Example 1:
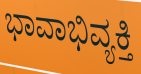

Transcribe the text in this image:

ಭಾವಾಭಿವ್ಯಕ್ತಿ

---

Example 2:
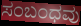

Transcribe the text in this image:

ಸಂಬಂಧವು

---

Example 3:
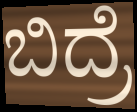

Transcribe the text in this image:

ಬಿದ್ರೆ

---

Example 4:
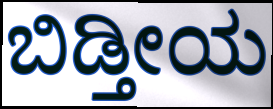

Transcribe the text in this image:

ಬಿಡ್ತೀಯ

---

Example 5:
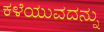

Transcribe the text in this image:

ಕಳೆಯುವದನ್ನು